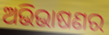
ଅଭିଭାଷଣର